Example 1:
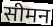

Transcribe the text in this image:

सीमन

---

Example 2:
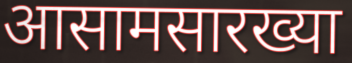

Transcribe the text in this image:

आसामसारख्या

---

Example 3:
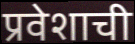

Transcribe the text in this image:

प्रवेशाची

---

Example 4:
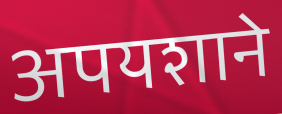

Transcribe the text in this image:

अपयशाने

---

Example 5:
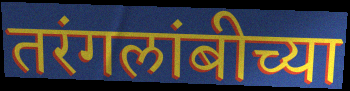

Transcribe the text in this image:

तरंगलांबीच्या